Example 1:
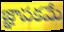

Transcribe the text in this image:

జ్ఞాపకమే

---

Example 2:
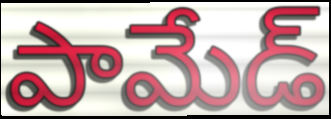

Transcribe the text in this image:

పామేడ్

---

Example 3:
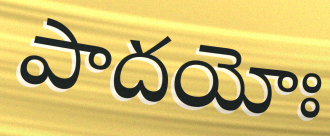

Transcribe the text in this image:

పాదయోః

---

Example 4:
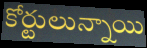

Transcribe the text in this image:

కోర్టులున్నాయి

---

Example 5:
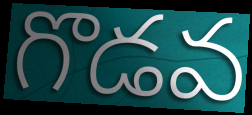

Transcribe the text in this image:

గొడవ